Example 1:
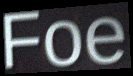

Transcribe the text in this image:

Foe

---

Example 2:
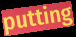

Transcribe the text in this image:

putting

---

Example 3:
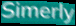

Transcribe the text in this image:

Simerly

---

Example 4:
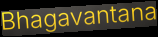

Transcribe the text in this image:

Bhagavantana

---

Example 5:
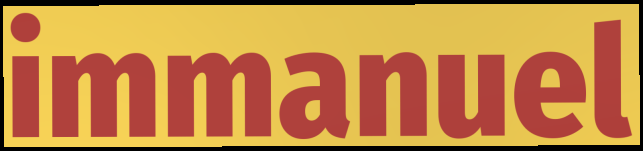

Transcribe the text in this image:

immanuel